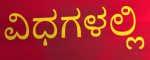
ವಿಧಗಳಲ್ಲಿ